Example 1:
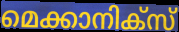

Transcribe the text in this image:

മെക്കാനിക്സ്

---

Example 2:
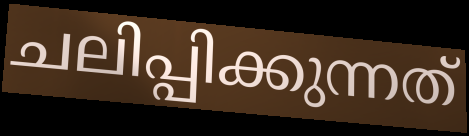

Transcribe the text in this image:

ചലിപ്പിക്കുന്നത്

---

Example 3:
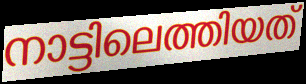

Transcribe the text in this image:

നാട്ടിലെത്തിയത്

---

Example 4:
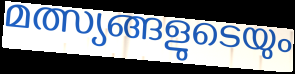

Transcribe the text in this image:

മത്സ്യങ്ങളുടെയും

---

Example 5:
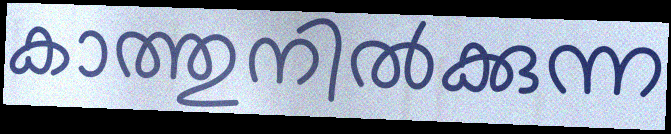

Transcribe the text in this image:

കാത്തുനിൽക്കുന്ന